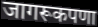
जागरूकपणा